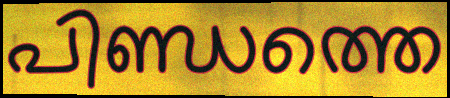
പിണ്ഡത്തെ